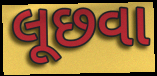
લૂછવા